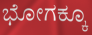
ಭೋಗಕ್ಕೂ